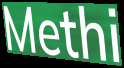
Methi